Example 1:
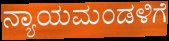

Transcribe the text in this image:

ನ್ಯಾಯಮಂಡಳಿಗೆ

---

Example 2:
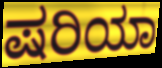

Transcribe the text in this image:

ಷರಿಯಾ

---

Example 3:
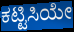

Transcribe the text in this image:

ಕಟ್ಟಿಸಿಯೇ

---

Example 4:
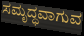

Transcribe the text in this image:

ಸಮೃದ್ಧವಾಗುವ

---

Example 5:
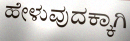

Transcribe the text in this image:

ಹೇಳುವುದಕ್ಕಾಗಿ